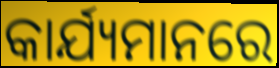
କାର୍ଯ୍ୟମାନରେ